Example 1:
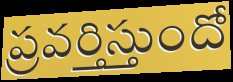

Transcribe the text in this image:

ప్రవర్తిస్తుందో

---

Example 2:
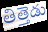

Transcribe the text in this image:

తిత్తెడు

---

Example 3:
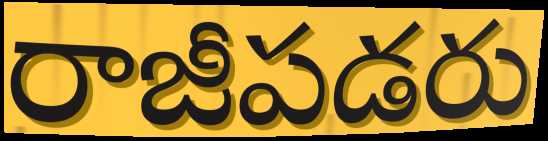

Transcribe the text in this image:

రాజీపడరు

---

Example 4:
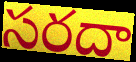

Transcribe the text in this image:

సరదా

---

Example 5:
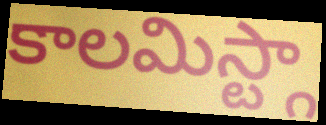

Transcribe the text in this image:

కాలమిస్ట్గా